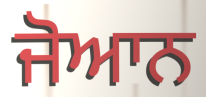
ਜੋਆਨ